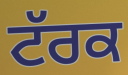
ਟੱਰਕ